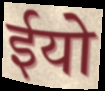
ईयो